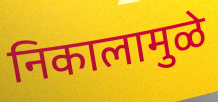
निकालामुळे